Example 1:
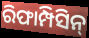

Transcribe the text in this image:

ରିଫାମ୍ପିସିନ୍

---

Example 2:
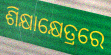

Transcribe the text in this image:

ଶିକ୍ଷାକ୍ଷେତ୍ରରେ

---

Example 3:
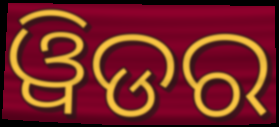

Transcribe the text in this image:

ୱିଡର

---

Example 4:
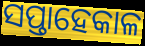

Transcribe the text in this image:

ସପ୍ତାହେକାଳ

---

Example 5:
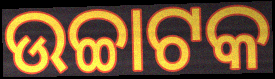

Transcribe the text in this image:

ଉଚ୍ଚାଟକ